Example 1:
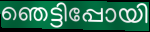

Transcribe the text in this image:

ഞെട്ടിപ്പോയി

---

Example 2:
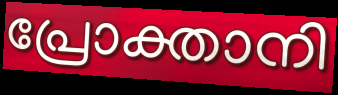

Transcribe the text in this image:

പ്രോക്താനി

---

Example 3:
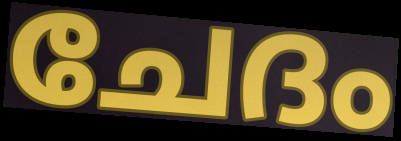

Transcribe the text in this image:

ചേദം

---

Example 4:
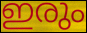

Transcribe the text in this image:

ഇരും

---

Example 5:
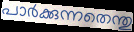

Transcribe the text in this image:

പാർക്കുന്നതെന്തു